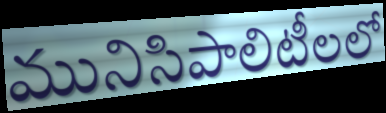
మునిసిపాలిటీలలో